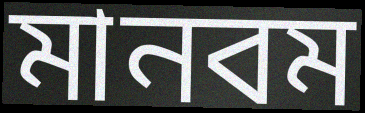
মানবম